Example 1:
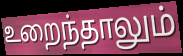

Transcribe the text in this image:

உறைந்தாலும்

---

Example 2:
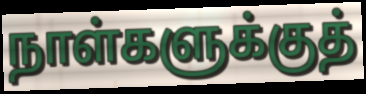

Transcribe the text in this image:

நாள்களுக்குத்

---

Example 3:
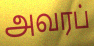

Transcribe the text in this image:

அவரப்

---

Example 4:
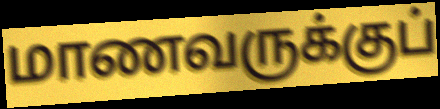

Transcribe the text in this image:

மாணவருக்குப்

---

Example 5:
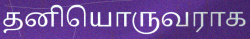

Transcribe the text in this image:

தனியொருவராக